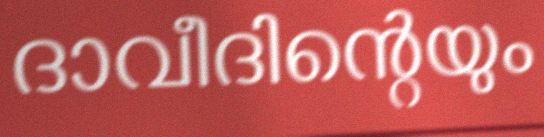
ദാവീദിന്റെയും